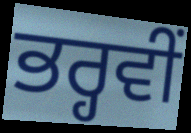
ਭਰ੍ਹਵੀਂ